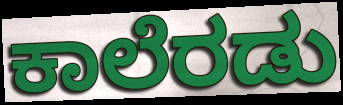
ಕಾಲೆರಡು